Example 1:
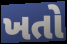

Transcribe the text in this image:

ખતો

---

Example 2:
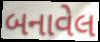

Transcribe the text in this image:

બનાવેલ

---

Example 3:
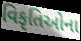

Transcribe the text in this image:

વિકૃતિઓના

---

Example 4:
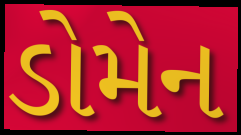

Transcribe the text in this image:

ડોમેન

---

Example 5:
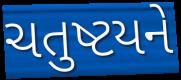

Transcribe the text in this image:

ચતુષ્ટયને